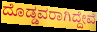
ದೊಡ್ಡವರಾಗಿದ್ದೇವೆ